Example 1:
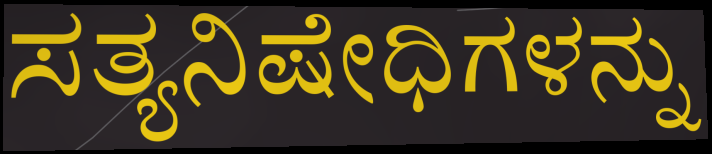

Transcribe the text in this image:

ಸತ್ಯನಿಷೇಧಿಗಳನ್ನು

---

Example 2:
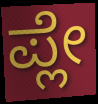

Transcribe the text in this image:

ಪ್ಲೇ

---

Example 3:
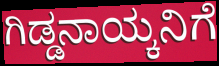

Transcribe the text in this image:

ಗಿಡ್ಡನಾಯ್ಕನಿಗೆ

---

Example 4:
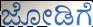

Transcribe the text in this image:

ಜೋಡಿಗೆ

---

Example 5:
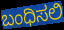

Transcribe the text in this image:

ಬಂಧಿಸಲಿ